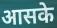
आसके